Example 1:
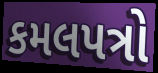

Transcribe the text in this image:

કમલપત્રો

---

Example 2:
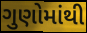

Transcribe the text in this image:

ગુણોમાંથી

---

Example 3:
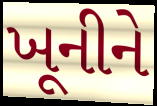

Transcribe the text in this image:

ખૂનીને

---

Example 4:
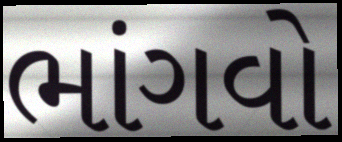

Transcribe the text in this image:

ભાંગવો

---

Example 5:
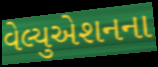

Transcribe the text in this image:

વેલ્યુએશનના